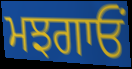
ਮਝਗਾਓਂ